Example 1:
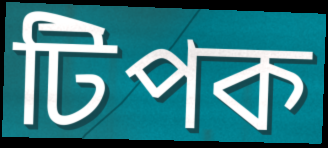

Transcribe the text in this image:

টিপক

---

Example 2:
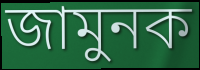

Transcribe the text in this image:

জামুনক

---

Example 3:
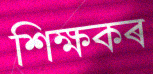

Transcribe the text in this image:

শিক্ষকৰ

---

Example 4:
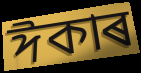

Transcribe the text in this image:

ঈকাৰ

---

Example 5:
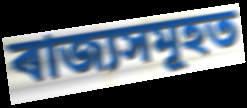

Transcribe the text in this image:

ৰাজ্যসমূহত